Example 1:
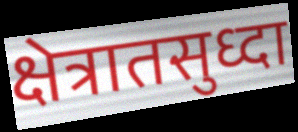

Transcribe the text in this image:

क्षेत्रातसुध्दा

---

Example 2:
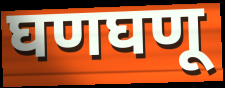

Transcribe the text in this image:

घणघणू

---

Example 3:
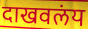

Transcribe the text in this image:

दाखवलंय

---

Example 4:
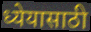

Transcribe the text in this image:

ध्येयासाठी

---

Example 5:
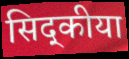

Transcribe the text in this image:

सिद्‌कीया